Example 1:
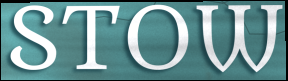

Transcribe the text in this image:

STOW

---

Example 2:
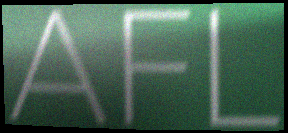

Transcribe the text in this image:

AFL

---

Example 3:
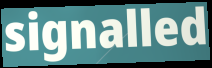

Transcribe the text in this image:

signalled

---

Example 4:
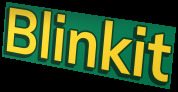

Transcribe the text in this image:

Blinkit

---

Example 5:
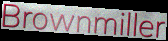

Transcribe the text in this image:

Brownmiller